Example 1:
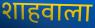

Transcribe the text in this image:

शाहवाला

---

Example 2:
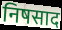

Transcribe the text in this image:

निषसाद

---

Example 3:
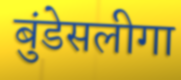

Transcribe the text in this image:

बुंडेसलीगा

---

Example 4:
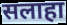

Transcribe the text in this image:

सलाहा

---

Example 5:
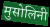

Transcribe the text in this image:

मुसोलिनी